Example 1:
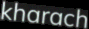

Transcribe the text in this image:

kharach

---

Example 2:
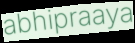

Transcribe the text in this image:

abhipraaya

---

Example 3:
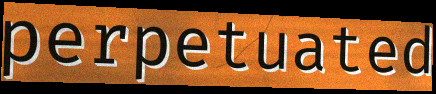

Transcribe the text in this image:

perpetuated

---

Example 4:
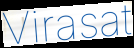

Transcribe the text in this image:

Virasat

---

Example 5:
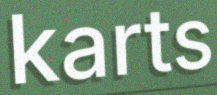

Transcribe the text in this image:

karts